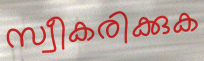
സ്വീകരിക്കുക